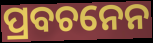
ପ୍ରବଚନେନ